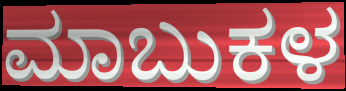
ಮಾಬುಕಳ